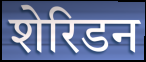
शेरिडन